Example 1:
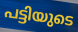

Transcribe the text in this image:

പട്ടിയുടെ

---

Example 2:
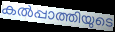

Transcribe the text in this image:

കൽപ്പാത്തിയുടെ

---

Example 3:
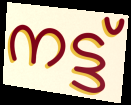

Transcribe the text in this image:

നട്ട്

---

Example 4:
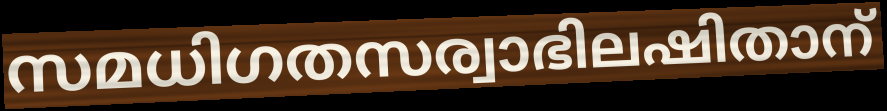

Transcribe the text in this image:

സമധിഗതസര്വാഭിലഷിതാന്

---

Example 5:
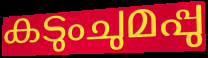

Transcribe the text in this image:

കടുംചുമപ്പു